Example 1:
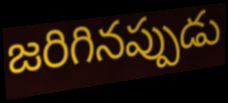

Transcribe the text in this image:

జరిగినప్పుడు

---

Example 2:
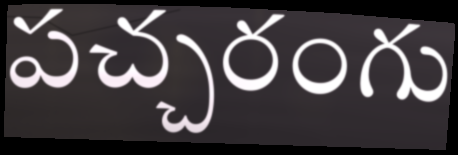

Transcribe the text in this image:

పచ్చరంగు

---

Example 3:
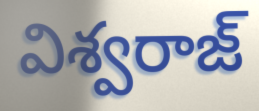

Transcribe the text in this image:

విశ్వరాజ్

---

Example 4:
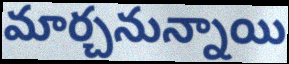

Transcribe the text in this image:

మార్చనున్నాయి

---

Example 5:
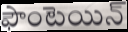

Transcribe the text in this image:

ఫౌంటెయిన్